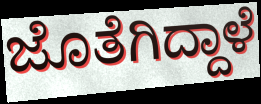
ಜೊತೆಗಿದ್ದಾಳೆ